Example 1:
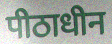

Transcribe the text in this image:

पीठाधीन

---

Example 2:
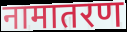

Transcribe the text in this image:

नामातरण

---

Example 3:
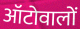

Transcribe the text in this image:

ऑटोवालों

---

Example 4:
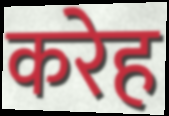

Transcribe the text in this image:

करेह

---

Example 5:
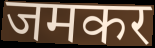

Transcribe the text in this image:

जमकर